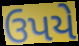
ઉપયે